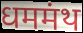
धममंथ